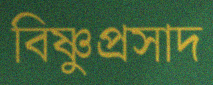
বিষ্ণুপ্রসাদ